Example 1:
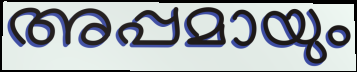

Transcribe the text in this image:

അപ്പമായും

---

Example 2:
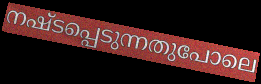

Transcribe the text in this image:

നഷ്ടപ്പെടുന്നതുപോലെ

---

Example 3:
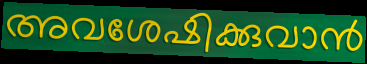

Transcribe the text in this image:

അവശേഷിക്കുവാൻ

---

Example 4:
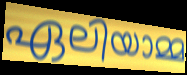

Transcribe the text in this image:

ഏലിയാമ്മ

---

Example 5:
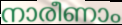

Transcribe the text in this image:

നാരീണാം